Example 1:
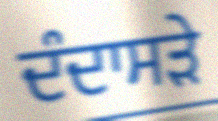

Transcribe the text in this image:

ਦੰਦਾਸੜੇ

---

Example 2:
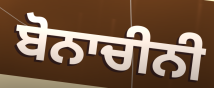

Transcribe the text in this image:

ਬੋਨਾਚੀਨੀ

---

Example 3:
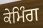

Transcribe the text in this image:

ਕੇਮਿੰਗ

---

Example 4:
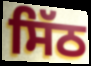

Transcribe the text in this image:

ਸਿੱਠ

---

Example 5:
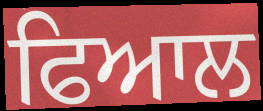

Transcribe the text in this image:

ਫਿਆਲ